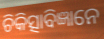
ଚିକିତ୍ସାବିଜ୍ଞାନେ